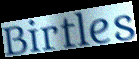
Birtles